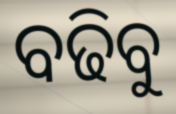
ବଢିବୁ